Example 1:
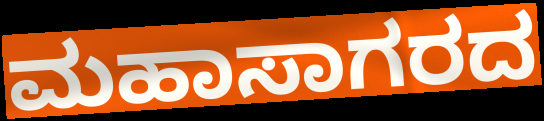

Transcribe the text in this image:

ಮಹಾಸಾಗರದ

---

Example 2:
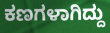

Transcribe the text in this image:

ಕಣಗಳಾಗಿದ್ದು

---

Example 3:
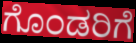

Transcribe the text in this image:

ಗೊಂಡರಿಗೆ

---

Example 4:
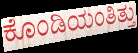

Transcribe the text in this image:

ಕೊಂಡಿಯಂತಿತ್ತು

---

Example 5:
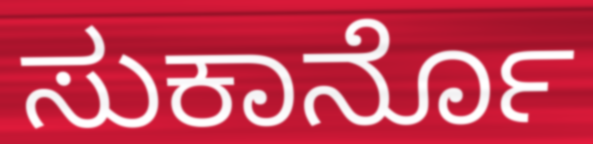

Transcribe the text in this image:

ಸುಕಾರ್ನೊ